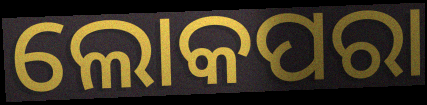
ଲୋକପରା